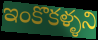
ఇంకొకళ్ళని